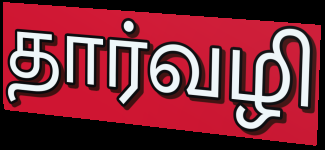
தார்வழி